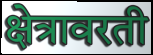
क्षेत्रावरती